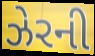
ઝેરની